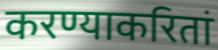
करण्याकरितां